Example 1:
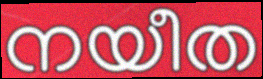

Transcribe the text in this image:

നയീത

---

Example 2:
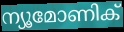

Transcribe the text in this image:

ന്യൂമോണിക്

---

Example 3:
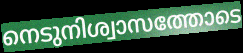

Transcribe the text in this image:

നെടുനിശ്വാസത്തോടെ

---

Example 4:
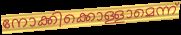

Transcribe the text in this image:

നോക്കിക്കൊള്ളാമെന്ന്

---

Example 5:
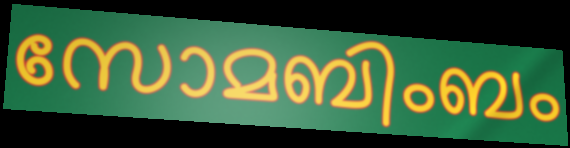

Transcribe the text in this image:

സോമബിംബം